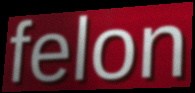
felon